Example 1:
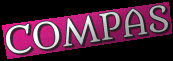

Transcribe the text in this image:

COMPAS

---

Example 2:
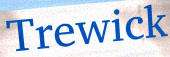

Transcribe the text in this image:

Trewick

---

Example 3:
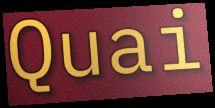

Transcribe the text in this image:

Quai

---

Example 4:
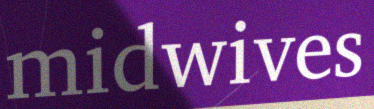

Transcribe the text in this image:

midwives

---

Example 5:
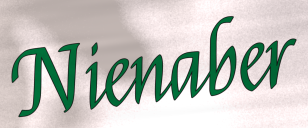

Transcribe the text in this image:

Nienaber